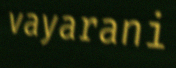
vayarani